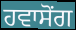
ਹਵਾਸੋਂਗ